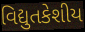
વિદ્યુતકેશીય